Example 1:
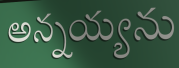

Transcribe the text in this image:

అన్నయ్యను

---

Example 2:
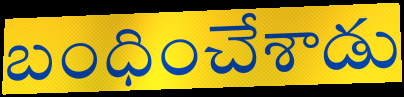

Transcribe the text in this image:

బంధించేశాడు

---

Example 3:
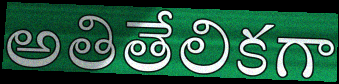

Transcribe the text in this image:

అతితేలికగా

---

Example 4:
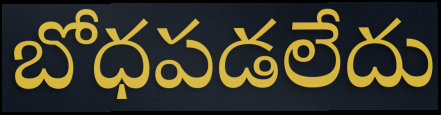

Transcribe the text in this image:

బోధపడలేదు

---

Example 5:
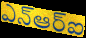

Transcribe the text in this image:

ఎన్ఆర్ఐ